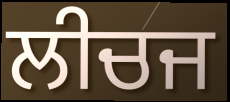
ਲੀਚਜ